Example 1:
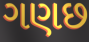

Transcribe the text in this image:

ગણછ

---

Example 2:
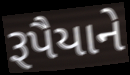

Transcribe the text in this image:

રૂપૈયાને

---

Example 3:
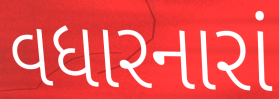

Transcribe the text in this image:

વધારનારાં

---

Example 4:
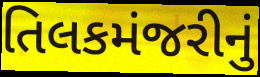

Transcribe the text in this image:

તિલકમંજરીનું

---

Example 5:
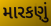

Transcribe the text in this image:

મારકણું